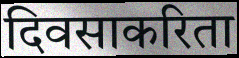
दिवसाकरिता